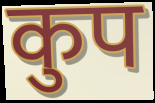
कुप